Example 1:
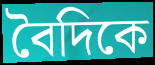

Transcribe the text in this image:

বৈদিকে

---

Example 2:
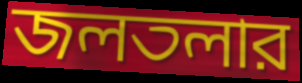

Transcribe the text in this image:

জলতলার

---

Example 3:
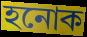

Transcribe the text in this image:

হনোক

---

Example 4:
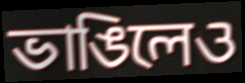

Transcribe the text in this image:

ভাঙিলেও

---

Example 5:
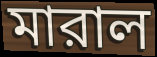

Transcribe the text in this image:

মারাল